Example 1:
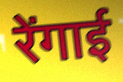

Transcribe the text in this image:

रेंगाई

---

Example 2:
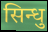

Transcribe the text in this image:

सिन्‍धु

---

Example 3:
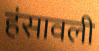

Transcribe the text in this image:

हंसावली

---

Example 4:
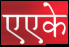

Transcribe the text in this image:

एएके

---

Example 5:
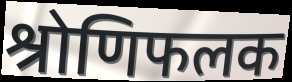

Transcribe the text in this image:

श्रोणिफलक